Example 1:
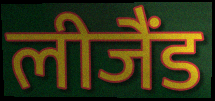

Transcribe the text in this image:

लीजैंड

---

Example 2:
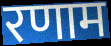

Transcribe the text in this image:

रणाम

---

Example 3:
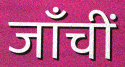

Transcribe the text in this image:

जाँचीं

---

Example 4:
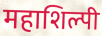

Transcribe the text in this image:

महाशिल्पी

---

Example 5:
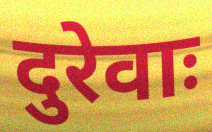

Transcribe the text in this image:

दुरेवाः